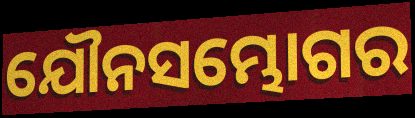
ଯୌନସମ୍ଭୋଗର